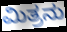
ಮಿತ್ರನು